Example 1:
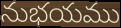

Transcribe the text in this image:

నుభయము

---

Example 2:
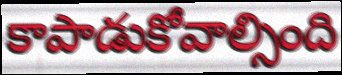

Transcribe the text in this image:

కాపాడుకోవాల్సింది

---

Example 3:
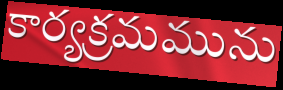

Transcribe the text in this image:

కార్యక్రమమును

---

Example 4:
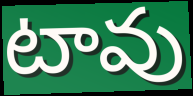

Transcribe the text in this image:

టావు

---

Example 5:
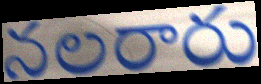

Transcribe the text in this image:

నలరారు